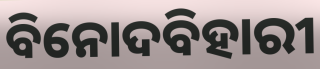
ବିନୋଦବିହାରୀ